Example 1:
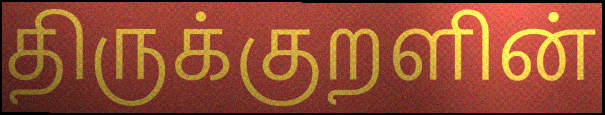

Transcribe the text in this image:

திருக்குறளின்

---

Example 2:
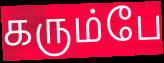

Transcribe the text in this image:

கரும்பே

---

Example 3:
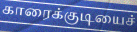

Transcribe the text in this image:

காரைக்குடியைச்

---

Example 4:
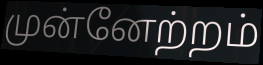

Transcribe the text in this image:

முன்னேற்றம்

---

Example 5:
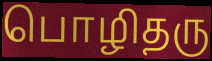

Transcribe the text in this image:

பொழிதரு